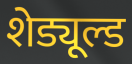
शेड्यूल्ड